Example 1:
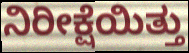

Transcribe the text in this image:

ನಿರೀಕ್ಷೆಯಿತ್ತು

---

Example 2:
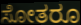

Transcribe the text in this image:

ಸೋತರೂ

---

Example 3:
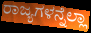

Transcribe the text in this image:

ರಾಜ್ಯಗಳನ್ನೆಲ್ಲಾ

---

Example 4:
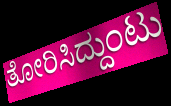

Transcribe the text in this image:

ತೋರಿಸಿದ್ದುಂಟು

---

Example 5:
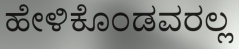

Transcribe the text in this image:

ಹೇಳಿಕೊಂಡವರಲ್ಲ